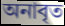
অনাবৃত